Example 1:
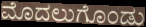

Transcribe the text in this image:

ಮೊದಲುಗೊಂಡು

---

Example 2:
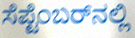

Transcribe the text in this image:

ಸೆಪ್ಟೆಂಬರ್‌ನಲ್ಲಿ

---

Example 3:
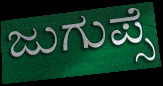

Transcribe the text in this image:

ಜುಗುಪ್ಸೆ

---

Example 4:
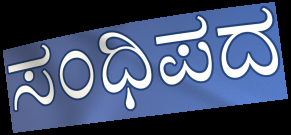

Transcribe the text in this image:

ಸಂಧಿಪದ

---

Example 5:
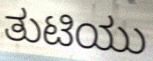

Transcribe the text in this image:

ತುಟಿಯು